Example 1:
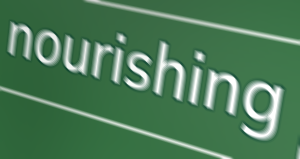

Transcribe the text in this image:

nourishing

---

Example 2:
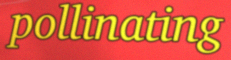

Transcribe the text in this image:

pollinating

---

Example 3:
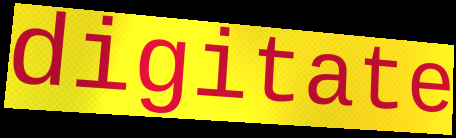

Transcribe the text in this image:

digitate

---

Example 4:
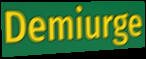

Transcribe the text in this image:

Demiurge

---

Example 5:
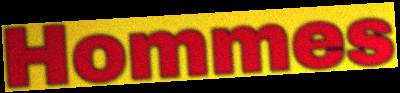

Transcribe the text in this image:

Hommes